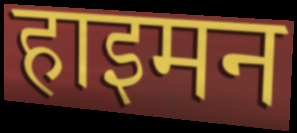
हाइमन